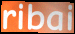
ribai